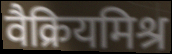
वैक्रियमिश्र